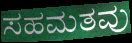
ಸಹಮತವು